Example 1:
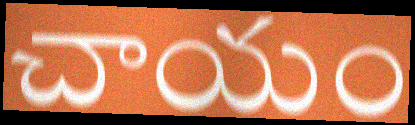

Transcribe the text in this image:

చాయం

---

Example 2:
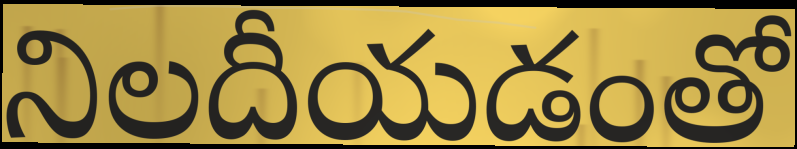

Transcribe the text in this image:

నిలదీయడంతో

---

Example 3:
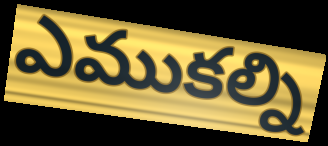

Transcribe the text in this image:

ఎముకల్ని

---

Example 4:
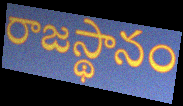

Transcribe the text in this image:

రాజస్థానం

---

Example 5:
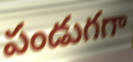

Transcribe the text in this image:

పండుగగా